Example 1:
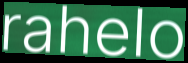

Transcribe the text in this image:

rahelo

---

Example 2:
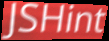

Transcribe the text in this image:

JSHint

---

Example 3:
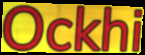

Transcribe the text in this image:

Ockhi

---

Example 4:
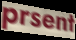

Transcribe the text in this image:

prsent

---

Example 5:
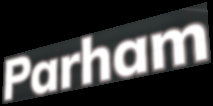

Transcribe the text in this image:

Parham